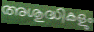
അശുദ്ധികളും